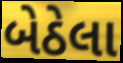
બેઠેલા